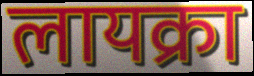
लायक्रा